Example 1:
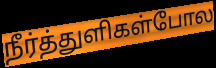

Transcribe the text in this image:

நீர்த்துளிகள்போல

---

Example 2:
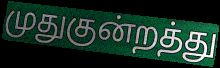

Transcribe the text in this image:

முதுகுன்றத்து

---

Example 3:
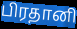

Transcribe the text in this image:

பிரதானி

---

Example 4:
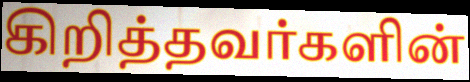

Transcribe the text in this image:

கிறித்தவர்களின்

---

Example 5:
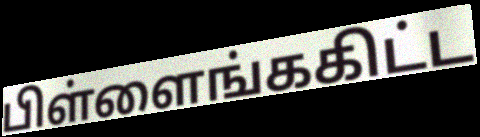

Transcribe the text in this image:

பிள்ளைங்ககிட்ட